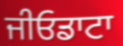
ਜੀਓਡਾਟਾ